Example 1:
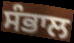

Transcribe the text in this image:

ਸੰਭਾਲ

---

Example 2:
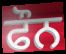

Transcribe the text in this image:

ਫੌਨ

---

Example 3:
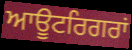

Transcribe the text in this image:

ਆਊਟਰਿਗਰਾਂ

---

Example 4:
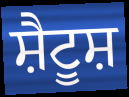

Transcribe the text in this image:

ਸ਼ੈਟੂਸ਼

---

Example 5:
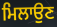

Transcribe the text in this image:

ਮਿਲਾਉਣ